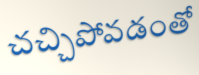
చచ్చిపోవడంతో